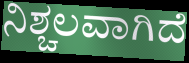
ನಿಶ್ಚಲವಾಗಿದೆ